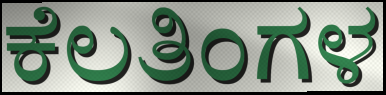
ಕೆಲತಿಂಗಳ